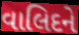
વાલિદને